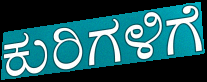
ಕುರಿಗಳಿಗೆ